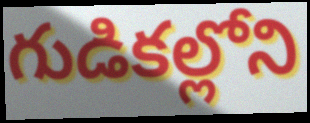
గుడికల్లోని